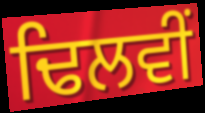
ਢਿਲਵੀਂ